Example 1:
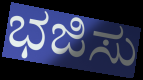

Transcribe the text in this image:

ಭಜಿಸು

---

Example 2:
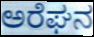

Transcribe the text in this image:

ಅರೆಘನ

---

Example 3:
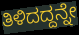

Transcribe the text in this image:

ತಿಳಿದದ್ದನ್ನೇ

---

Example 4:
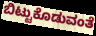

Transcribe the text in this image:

ಬಿಟ್ಟುಕೊಡುವಂತೆ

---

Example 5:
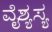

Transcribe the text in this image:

ವೈಶ್ಯಸ್ಯ